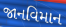
જાનવિમાન